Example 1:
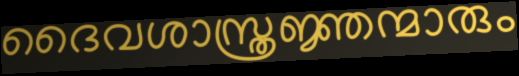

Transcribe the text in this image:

ദൈവശാസ്ത്രജ്ഞന്മാരും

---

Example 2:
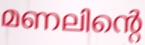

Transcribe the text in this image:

മണലിന്റെ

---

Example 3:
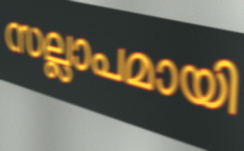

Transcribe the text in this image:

സല്ലാപമായി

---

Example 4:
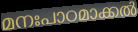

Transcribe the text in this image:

മനഃപാഠമാക്കൽ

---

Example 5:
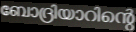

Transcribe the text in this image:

ബോദ്രിയാറിന്റെ